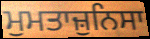
ਮੁਮਤਾਜ਼ੁਨਿਸਾ